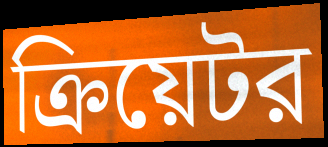
ক্রিয়েটর